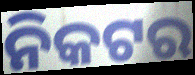
ନିକଟର